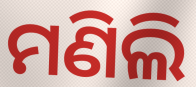
ମଣିଲି